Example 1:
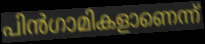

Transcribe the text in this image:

പിൻഗാമികളാണെന്ന്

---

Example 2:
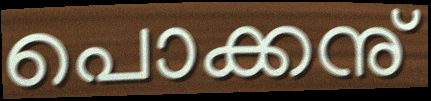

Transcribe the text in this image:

പൊക്കനു്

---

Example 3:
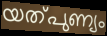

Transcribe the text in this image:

യത്പുണ്യം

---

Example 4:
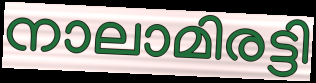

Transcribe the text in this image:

നാലാമിരട്ടി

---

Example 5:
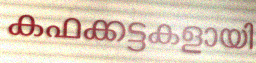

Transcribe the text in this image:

കഫക്കട്ടകളായി